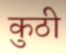
कुठी